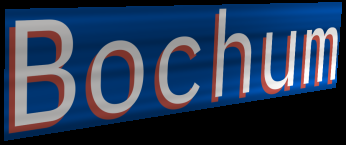
Bochum